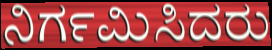
ನಿರ್ಗಮಿಸಿದರು